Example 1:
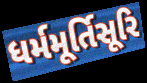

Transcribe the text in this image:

ધર્મમૂર્તિસૂરિ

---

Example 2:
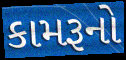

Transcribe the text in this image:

કામરૂનો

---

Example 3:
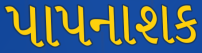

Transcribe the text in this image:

પાપનાશક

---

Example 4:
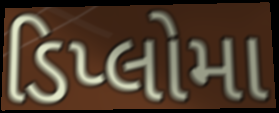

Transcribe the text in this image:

ડિપ્લોમા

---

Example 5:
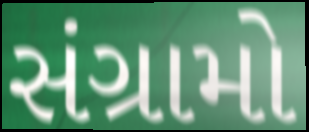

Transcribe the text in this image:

સંગ્રામો